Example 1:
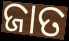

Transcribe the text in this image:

ଜାତ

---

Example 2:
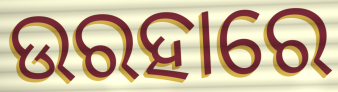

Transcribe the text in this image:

ଉରହାରେ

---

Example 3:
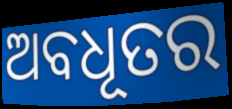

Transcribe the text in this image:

ଅବଧୂତର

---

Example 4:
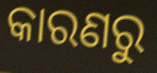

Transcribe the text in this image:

କାରଣରୁ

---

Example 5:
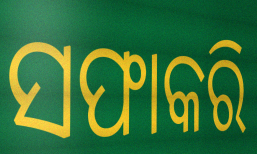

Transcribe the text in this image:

ସଫାକରି